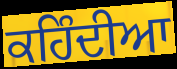
ਕਹਿੰਦੀਆ